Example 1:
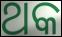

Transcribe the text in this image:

ଥକ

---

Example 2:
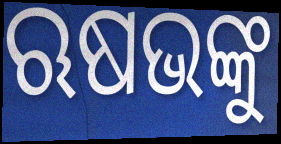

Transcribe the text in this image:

ଋଷଭଙ୍କୁ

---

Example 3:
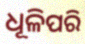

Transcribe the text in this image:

ଧୂଳିପରି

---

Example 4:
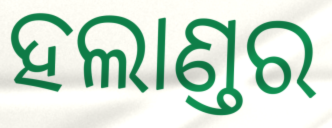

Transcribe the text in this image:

ହଲାଣ୍ଡର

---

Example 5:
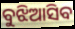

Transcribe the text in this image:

ବୁଝିଆସିବ